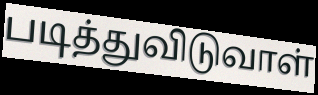
படித்துவிடுவாள்